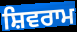
ਸ਼ਿਵਰਾਮ